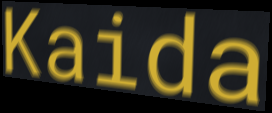
Kaida